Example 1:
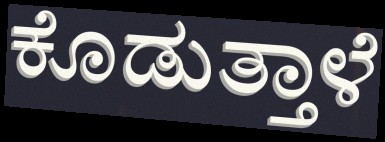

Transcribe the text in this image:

ಕೊಡುತ್ತಾಳೆ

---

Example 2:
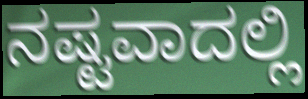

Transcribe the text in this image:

ನಷ್ಟವಾದಲ್ಲಿ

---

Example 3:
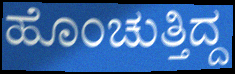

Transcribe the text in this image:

ಹೊಂಚುತ್ತಿದ್ದ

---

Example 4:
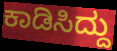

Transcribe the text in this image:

ಕಾಡಿಸಿದ್ದು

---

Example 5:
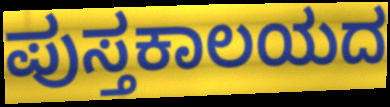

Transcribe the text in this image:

ಪುಸ್ತಕಾಲಯದ